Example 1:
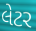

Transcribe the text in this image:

લેટર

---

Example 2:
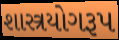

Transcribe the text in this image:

શાસ્ત્રયોગરૂપ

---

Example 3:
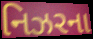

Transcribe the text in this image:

નિઝરના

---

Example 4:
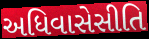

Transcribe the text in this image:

અધિવાસેસીતિ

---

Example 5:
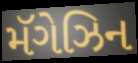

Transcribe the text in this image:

મૅગેઝિન